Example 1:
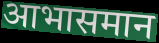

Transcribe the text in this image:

आभासमान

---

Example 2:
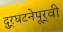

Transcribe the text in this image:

दुर्घटनेपूर्वी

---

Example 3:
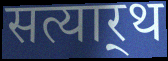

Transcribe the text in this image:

सत्यार्थ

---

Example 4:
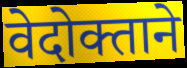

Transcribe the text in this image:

वेदोक्ताने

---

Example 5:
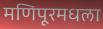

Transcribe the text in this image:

मणिपूरमधला